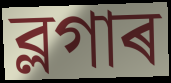
ব্লগাৰ